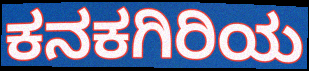
ಕನಕಗಿರಿಯ